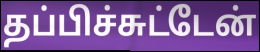
தப்பிச்சுட்டேன்